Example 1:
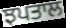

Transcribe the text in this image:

ਝਪਤਾਲ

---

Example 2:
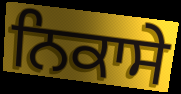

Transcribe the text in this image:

ਨਿਕਾਸੇ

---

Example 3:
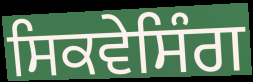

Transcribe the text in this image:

ਸਿਕਵੇਸਿੰਗ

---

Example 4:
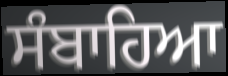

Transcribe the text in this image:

ਸੰਬਾਹਿਆ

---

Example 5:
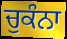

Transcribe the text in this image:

ਚੁਕੰਨਾ